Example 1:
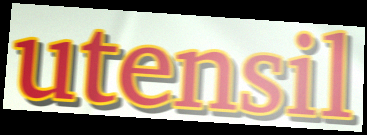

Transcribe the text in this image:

utensil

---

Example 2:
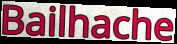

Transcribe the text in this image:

Bailhache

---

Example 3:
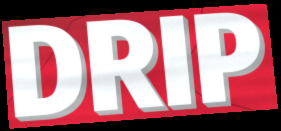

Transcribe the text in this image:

DRIP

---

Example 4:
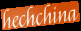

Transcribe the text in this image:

hechchina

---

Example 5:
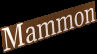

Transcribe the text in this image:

Mammon